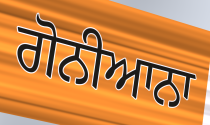
ਗੋਨੀਆਨਾ